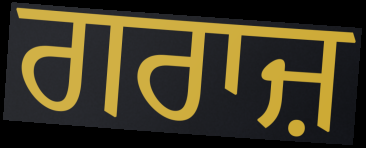
ਗਰਾਜ਼